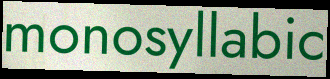
monosyllabic